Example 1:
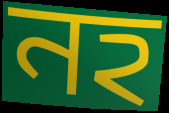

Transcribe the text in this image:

নহ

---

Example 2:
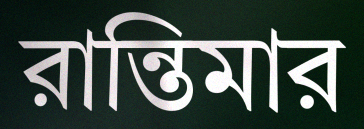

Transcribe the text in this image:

রান্তিমার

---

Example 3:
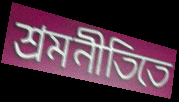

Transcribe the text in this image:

শ্রমনীতিতে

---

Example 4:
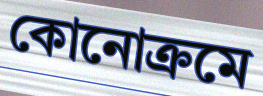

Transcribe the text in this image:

কোনোক্রমে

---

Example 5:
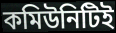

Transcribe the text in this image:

কমিউনিটিই